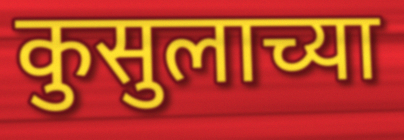
कुसुलाच्या